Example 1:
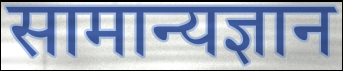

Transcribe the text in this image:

सामान्यज्ञान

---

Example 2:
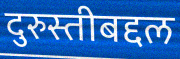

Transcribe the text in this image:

दुरुस्तीबद्दल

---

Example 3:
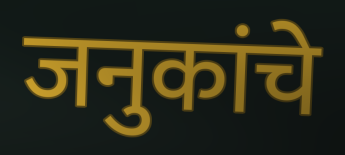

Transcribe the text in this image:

जनुकांचे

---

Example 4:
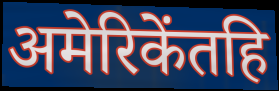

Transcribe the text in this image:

अमेरिकेंतहि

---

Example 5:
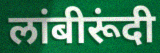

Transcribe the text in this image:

लांबीरूंदी